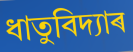
ধাতুবিদ্যাৰ